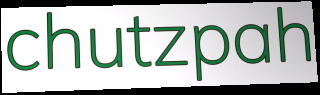
chutzpah